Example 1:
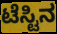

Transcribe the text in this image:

ಟೆಸ್ಟಿನ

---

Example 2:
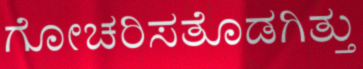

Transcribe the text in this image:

ಗೋಚರಿಸತೊಡಗಿತ್ತು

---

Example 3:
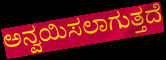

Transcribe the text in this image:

ಅನ್ವಯಿಸಲಾಗುತ್ತದೆ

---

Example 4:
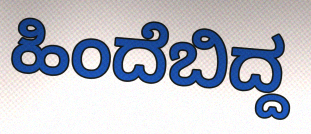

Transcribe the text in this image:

ಹಿಂದೆಬಿದ್ದ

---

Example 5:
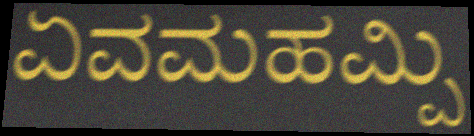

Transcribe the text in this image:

ಏವಮಹಮ್ಪಿ